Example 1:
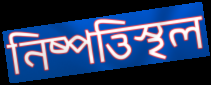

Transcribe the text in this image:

নিষ্পত্তিস্থল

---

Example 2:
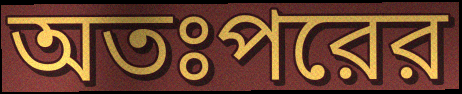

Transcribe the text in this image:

অতঃপরের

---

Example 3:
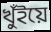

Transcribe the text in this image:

খুঁইয়ে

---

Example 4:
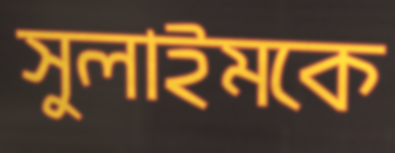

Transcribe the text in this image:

সুলাইমকে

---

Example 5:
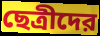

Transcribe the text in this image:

ছেত্রীদের